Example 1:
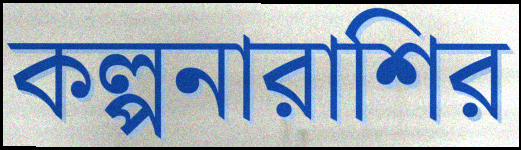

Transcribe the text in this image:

কল্পনারাশির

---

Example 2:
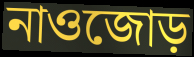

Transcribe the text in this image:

নাওজোড়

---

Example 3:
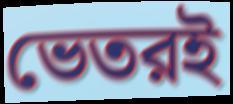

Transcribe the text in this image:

ভেতরই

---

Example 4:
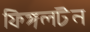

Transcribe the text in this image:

ফিঙ্গলটন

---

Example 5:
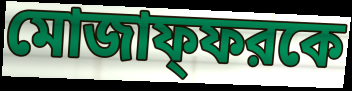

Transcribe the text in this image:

মোজাফ্ফরকে